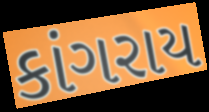
કાંગરાય